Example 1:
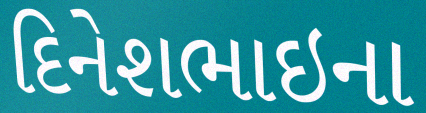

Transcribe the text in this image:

દિનેશભાઇના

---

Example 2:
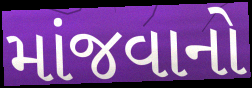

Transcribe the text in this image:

માંજવાનો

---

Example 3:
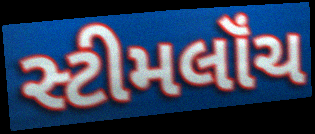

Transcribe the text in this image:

સ્ટીમલૉંચ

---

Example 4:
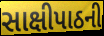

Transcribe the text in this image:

સાક્ષીપાઠની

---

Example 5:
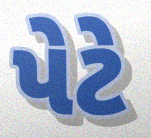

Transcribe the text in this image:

પેટે